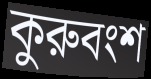
কুরুবংশ